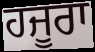
ਹਜੂਰਾ